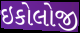
ઇકોલોજી